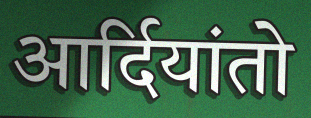
आर्दियांतो